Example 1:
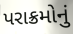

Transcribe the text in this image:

પરાક્રમોનું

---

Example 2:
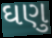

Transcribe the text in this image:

ઘણુ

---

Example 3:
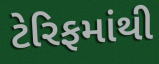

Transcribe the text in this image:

ટેરિફમાંથી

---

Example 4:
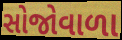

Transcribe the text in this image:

સોજોવાળા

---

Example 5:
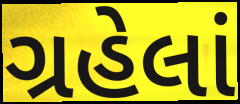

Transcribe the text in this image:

ગ્રહેલાં